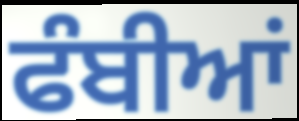
ਫੰਬੀਆਂ